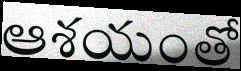
ఆశయంతో